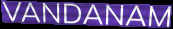
VANDANAM